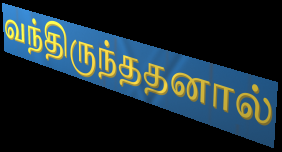
வந்திருந்ததனால்